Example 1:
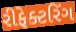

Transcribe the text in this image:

રીફેક્ટરિંગ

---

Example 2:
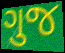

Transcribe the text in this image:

ગુજ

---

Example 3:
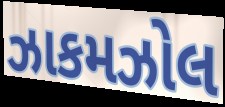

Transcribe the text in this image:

ઝાકમઝોલ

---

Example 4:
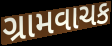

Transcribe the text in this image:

ગ્રામવાચક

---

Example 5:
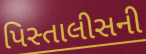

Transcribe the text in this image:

પિસ્તાલીસની